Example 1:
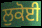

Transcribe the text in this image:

ਲੁਕੋਈ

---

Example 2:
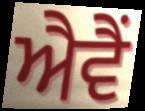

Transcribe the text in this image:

ਐਵੈਂ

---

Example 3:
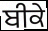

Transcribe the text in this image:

ਬੀਕੇ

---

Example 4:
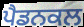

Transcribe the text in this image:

ਪੈਡਨਕਲ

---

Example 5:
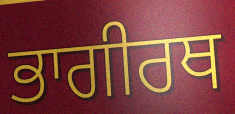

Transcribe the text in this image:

ਭਾਗੀਰਥ